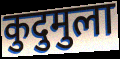
कुदुमुला